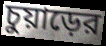
চুয়াড়ের